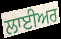
ਲਾਈਅਰ